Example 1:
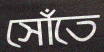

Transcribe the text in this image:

সোঁতে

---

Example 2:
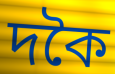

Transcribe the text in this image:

দকৈ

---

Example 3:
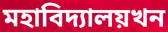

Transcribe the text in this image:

মহাবিদ্যালয়খন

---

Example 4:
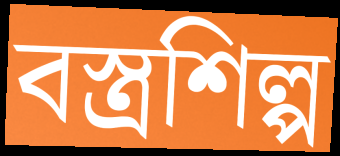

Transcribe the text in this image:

বস্ত্ৰশিল্প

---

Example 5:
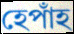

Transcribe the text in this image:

হেপাঁহ